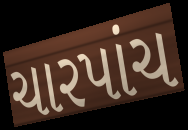
ચારપાંચ